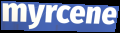
myrcene